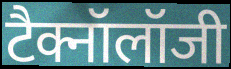
टैक्नॉलॉजी